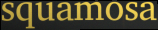
squamosa